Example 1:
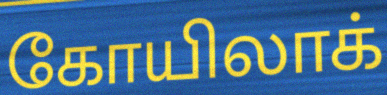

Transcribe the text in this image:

கோயிலாக்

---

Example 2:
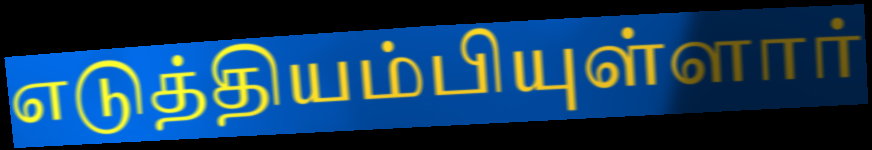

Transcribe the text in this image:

எடுத்தியம்பியுள்ளார்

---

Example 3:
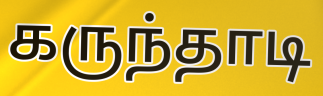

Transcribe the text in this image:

கருந்தாடி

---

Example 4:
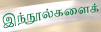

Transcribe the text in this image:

இந்நூல்களைக்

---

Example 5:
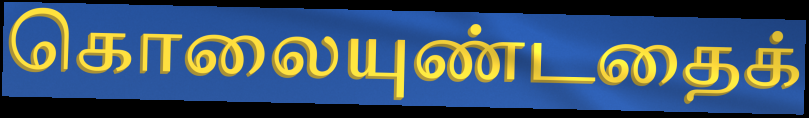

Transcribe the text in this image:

கொலையுண்டதைக்